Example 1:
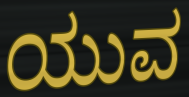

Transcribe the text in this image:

ಯುವ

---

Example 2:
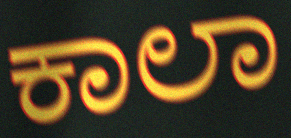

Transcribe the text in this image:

ಕಾಲಾ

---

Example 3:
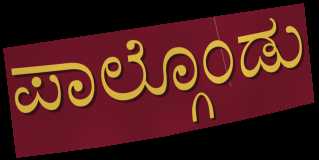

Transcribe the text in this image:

ಪಾಲ್ಗೊಂಡು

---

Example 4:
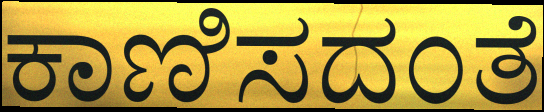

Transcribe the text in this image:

ಕಾಣಿಸದಂತೆ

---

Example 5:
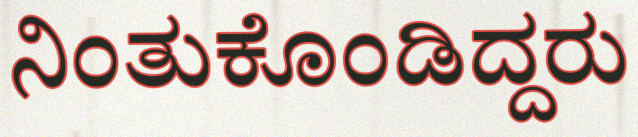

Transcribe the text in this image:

ನಿಂತುಕೊಂಡಿದ್ದರು